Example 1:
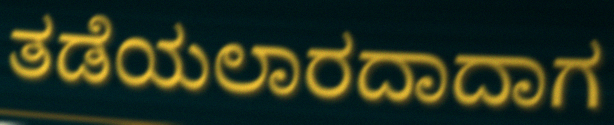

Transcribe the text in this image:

ತಡೆಯಲಾರದಾದಾಗ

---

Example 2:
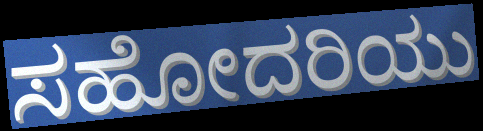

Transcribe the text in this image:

ಸಹೋದರಿಯು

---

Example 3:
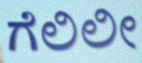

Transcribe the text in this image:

ಗೆಲಿಲೀ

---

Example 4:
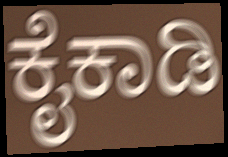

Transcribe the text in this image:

ಕೈಕಾಡಿ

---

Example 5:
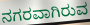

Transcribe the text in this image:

ನಗರವಾಗಿರುವ